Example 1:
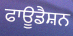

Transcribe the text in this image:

ਫਾਊਡੈਸ਼ਨ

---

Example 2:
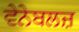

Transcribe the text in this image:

ਵੇਨੇਬਲਜ਼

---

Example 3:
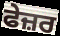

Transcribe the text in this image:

ਫੇਜ਼ਰ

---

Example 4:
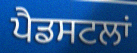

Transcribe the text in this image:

ਪੈਡਸਟਲਾਂ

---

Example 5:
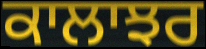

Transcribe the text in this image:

ਕਾਲਾਝਰ